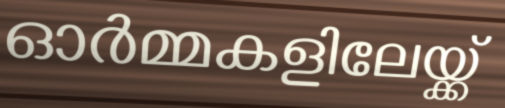
ഓർമ്മകളിലേയ്ക്ക്